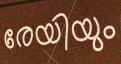
രേയിയും